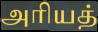
அரியத்